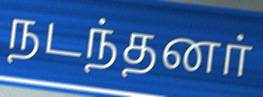
நடந்தனர்